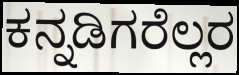
ಕನ್ನಡಿಗರೆಲ್ಲರ